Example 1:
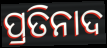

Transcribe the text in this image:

ପ୍ରତିନାଦ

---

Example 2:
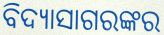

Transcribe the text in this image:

ବିଦ୍ୟାସାଗରଙ୍କର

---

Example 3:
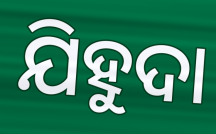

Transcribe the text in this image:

ଯିହୁଦା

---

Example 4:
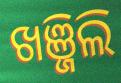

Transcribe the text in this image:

ଖଞ୍ଜିଲି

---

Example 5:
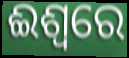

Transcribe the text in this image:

ଈଶ୍ଵରେ